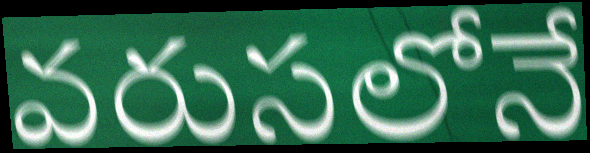
వరుసలోనే